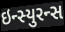
ઇન્સ્યુરન્સ